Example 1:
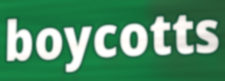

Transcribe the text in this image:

boycotts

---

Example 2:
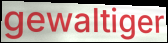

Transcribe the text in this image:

gewaltiger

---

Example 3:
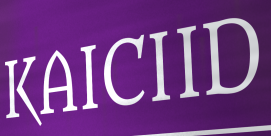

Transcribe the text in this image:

KAICIID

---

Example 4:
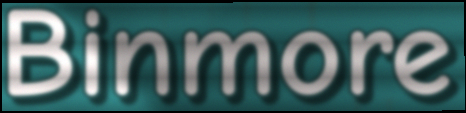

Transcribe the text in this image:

Binmore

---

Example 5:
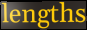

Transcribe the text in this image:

lengths